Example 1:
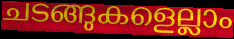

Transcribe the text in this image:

ചടങ്ങുകളെല്ലാം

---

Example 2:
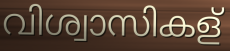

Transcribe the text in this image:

വിശ്വാസികള്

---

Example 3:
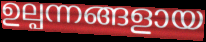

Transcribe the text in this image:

ഉല്പന്നങ്ങളായ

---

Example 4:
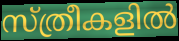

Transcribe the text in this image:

സ്ത്രീകളിൽ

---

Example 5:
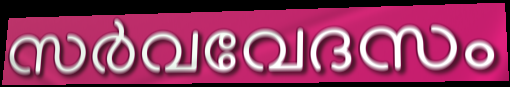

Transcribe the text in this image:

സർവവേദസം